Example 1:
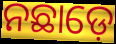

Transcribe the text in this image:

ନଛାଡ଼େ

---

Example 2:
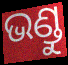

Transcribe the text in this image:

ଭଣ୍ଡୁ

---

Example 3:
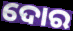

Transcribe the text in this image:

ଦୋର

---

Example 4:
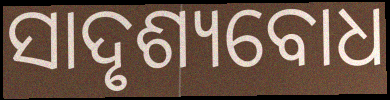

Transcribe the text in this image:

ସାଦୃଶ୍ୟବୋଧ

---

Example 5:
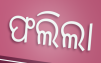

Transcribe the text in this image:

ଫଲିଲା